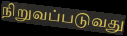
நிறுவப்படுவது